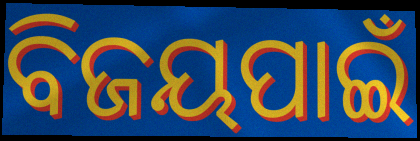
ବିଜୟପାଇଁ